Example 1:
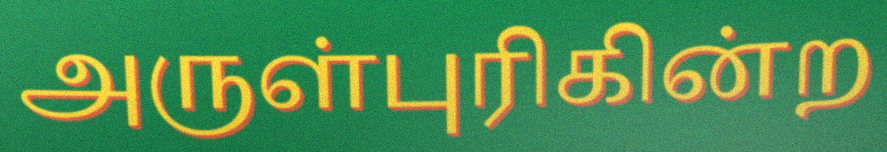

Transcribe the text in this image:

அருள்புரிகின்ற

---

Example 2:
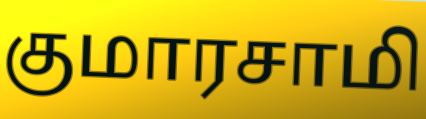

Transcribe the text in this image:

குமாரசாமி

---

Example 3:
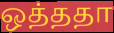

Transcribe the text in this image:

ஒத்ததா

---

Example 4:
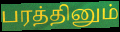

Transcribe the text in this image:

பரத்தினும்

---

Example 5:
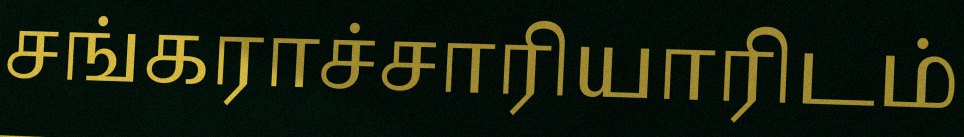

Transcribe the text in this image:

சங்கராச்சாரியாரிடம்